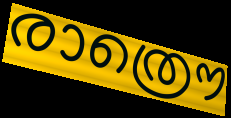
രാത്രൌ